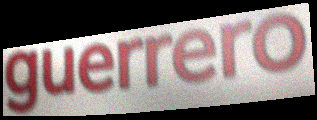
guerrero